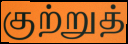
குற்றுத்